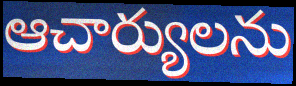
ఆచార్యులను